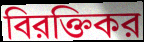
বিরক্তিকর